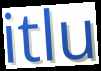
itlu